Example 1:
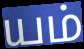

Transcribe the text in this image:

யம்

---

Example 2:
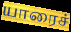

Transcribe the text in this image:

யாரைச்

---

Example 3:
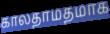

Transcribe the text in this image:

காலதாமதமாக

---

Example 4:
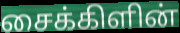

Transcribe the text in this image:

சைக்கிளின்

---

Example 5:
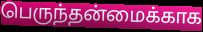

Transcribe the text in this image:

பெருந்தன்மைக்காக